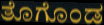
ತೊಗೊಂಡ